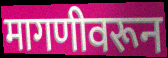
मागणीवरून